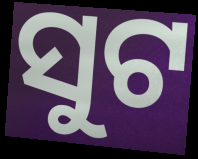
ସୁଟ